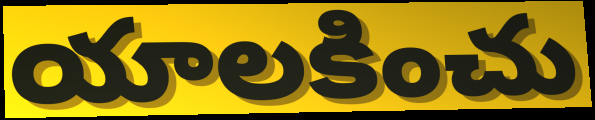
యాలకించు